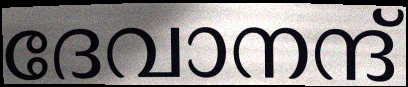
ദേവാനന്ദ്